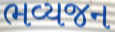
ભવ્યજન